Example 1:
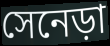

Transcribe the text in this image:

সেনেড়া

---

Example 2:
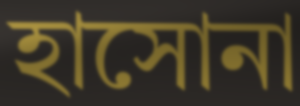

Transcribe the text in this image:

হাসোনা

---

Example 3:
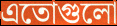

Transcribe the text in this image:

এতোগুলো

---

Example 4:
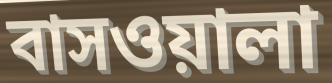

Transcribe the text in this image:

বাসওয়ালা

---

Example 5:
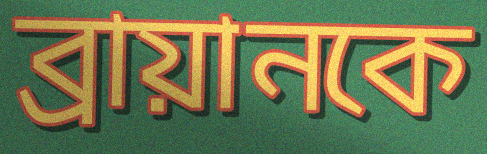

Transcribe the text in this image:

ব্রায়ানকে